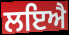
ਲਇਐ